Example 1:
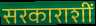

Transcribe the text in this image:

सरकाराशीं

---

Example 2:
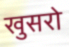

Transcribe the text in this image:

खुसरो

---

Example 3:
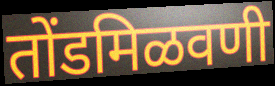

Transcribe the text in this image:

तोंडमिळवणी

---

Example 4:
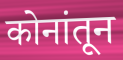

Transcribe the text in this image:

कोनांतून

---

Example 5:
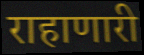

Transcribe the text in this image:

राहाणारी